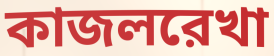
কাজলরেখা